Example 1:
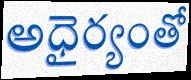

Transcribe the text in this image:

అధైర్యంతో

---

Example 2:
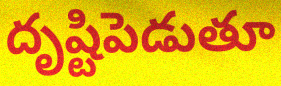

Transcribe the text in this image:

దృష్టిపెడుతూ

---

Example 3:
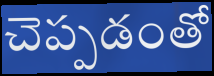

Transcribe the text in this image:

చెప్పడంతో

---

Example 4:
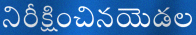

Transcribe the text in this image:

నిరీక్షించినయెడల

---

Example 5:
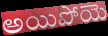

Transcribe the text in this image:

అయిపోయె